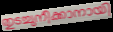
തുടച്ചുനീക്കാനായി